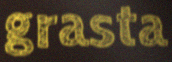
grasta